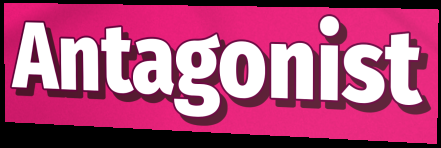
Antagonist